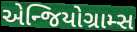
એન્જિયોગ્રામ્સ